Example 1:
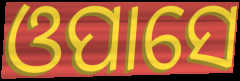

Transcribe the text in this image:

ଓପାସେ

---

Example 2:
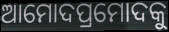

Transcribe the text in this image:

ଆମୋଦପ୍ରମୋଦକୁ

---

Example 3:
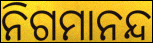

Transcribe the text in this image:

ନିଗମାନନ୍ଦ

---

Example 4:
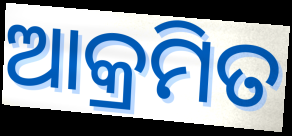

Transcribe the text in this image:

ଆକ୍ରମିତ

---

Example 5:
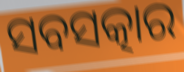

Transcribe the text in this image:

ସବସତ୍କାର